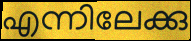
എന്നിലേക്കു